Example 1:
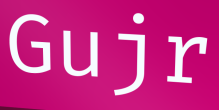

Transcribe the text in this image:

Gujr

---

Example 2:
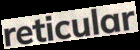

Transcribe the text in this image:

reticular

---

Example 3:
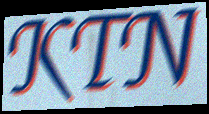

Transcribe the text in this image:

KTN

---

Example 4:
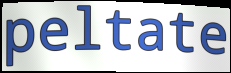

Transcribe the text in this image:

peltate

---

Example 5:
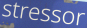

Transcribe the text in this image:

stressor